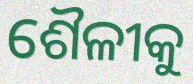
ଶୈଳୀକୁ